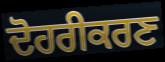
ਦੋਹਰੀਕਰਣ